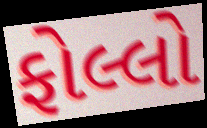
ફોલ્લો